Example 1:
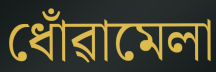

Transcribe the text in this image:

ধোঁৱামেলা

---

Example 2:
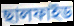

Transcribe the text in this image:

ছালফাইড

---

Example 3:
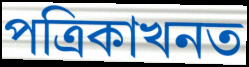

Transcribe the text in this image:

পত্ৰিকাখনত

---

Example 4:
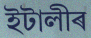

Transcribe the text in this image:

ইটালীৰ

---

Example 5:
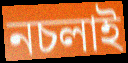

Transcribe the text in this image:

নচলাই